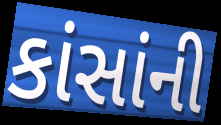
કાંસાંની